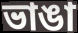
ভাঙা